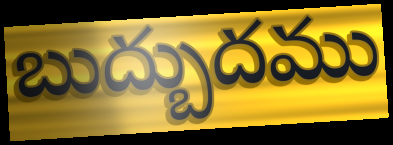
బుద్బుదము